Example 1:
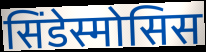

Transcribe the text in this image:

सिंडेस्मोसिस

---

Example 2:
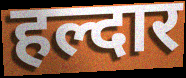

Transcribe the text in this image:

हल्दार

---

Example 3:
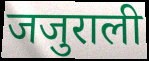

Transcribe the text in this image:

जजुराली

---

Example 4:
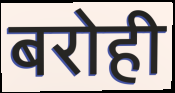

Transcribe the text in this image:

बरोही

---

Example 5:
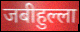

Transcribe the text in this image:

जबीहुल्ला